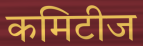
कमिटीज